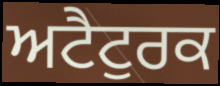
ਅਟੈਟੁਰਕ